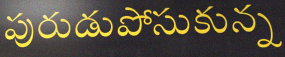
పురుడుపోసుకున్న